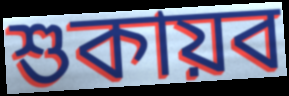
শুকায়ব